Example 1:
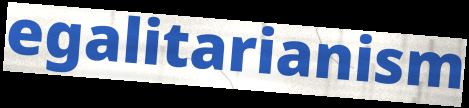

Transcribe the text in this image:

egalitarianism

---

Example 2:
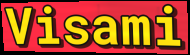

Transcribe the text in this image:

Visami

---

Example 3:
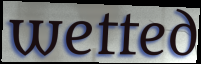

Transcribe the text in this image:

wetted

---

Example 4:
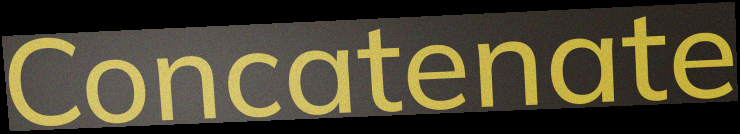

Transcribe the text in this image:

Concatenate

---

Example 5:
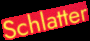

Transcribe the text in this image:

Schlatter